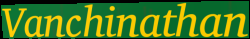
Vanchinathan